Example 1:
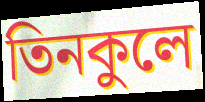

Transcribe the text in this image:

তিনকুলে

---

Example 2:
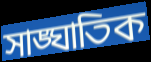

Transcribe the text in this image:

সাঙ্ঘাতিক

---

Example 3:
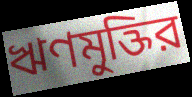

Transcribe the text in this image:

ঋণমুক্তির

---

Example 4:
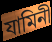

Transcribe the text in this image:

যামিনী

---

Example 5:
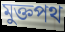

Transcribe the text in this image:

মুক্তপথ